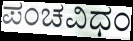
ಪಂಚವಿಧಂ